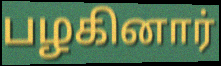
பழகினார்